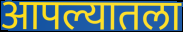
आपल्यातला